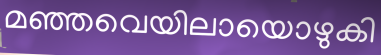
മഞ്ഞവെയിലായൊഴുകി